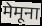
मेमूना